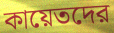
কায়েতদের